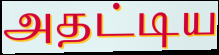
அதட்டிய